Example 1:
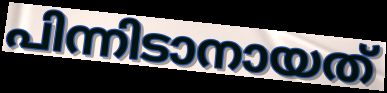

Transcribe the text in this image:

പിന്നിടാനായത്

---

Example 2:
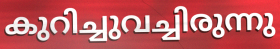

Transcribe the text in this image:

കുറിച്ചുവച്ചിരുന്നു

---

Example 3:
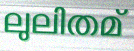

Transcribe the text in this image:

ലുലിതമ്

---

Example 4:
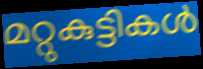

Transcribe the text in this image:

മറ്റുകുട്ടികൾ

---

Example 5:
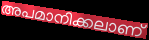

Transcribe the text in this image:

അപമാനിക്കലാണ്